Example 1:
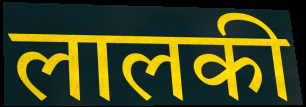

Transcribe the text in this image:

लालकी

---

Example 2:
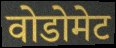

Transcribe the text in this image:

वोडोमेट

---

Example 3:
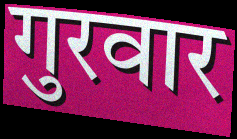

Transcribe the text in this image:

गुरवार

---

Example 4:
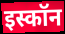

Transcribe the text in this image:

इस्कॉन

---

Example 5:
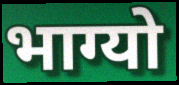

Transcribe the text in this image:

भाग्यो